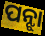
ପନ୍ଝା